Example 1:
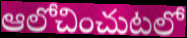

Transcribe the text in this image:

ఆలోచించుటలో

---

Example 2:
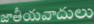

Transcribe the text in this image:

జాతీయవాదులు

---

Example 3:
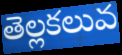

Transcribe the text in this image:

తెల్లకలువ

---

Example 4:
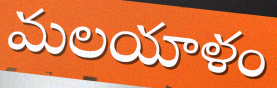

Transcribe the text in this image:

మలయాళం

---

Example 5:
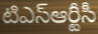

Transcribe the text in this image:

టిఎస్ఆర్టీసీ